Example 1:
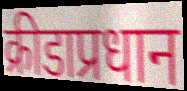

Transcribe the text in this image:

क्रीडाप्रधान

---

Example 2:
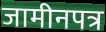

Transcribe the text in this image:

जामीनपत्र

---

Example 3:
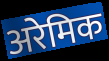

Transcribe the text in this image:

अरेमिक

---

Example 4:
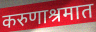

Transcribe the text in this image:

करुणाश्रमात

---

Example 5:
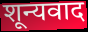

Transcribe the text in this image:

शून्यवाद